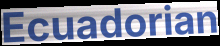
Ecuadorian